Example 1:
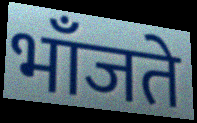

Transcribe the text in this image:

भाँजते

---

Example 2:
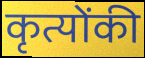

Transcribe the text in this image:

कृत्योंकी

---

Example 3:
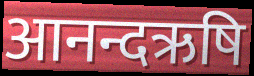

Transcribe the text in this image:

आनन्दऋषि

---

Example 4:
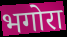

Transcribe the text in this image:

भगोरा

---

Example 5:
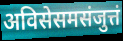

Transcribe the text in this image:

अविसेसमसंजुत्तं